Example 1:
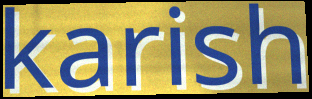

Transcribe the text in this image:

karish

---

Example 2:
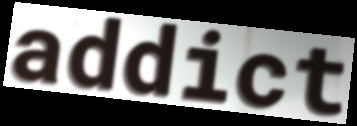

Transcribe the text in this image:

addict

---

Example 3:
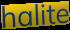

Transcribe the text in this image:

halite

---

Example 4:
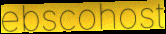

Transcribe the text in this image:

ebscohost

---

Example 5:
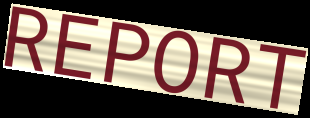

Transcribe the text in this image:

REPORT